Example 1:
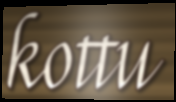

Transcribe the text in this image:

kottu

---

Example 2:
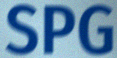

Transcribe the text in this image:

SPG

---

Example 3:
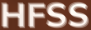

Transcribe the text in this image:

HFSS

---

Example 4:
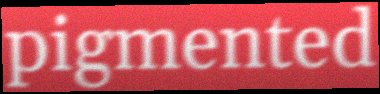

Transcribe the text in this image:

pigmented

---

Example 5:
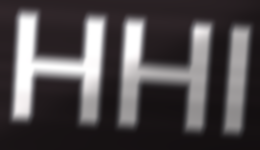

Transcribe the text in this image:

HHI